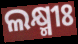
ଲକ୍ଷ୍ମୀଃ